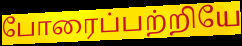
போரைப்பற்றியே